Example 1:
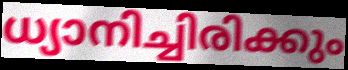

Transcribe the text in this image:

ധ്യാനിച്ചിരിക്കും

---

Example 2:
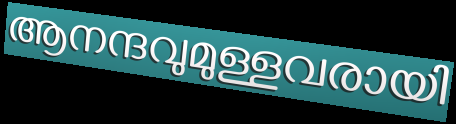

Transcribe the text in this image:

ആനന്ദവുമുള്ളവരായി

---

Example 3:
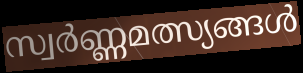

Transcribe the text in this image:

സ്വർണ്ണമത്സ്യങ്ങൾ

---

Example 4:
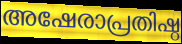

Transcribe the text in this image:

അഷേരാപ്രതിഷ്ഠ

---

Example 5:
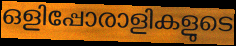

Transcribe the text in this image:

ഒളിപ്പോരാളികളുടെ